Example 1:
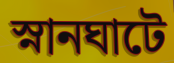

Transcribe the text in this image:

স্নানঘাটে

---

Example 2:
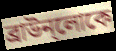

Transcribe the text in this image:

ব্রাউন্লোকে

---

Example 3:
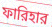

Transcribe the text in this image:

ফারিহার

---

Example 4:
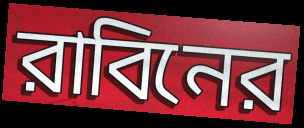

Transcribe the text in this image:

রাবিনের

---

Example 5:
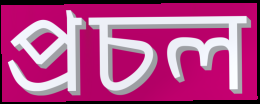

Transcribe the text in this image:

প্রচল